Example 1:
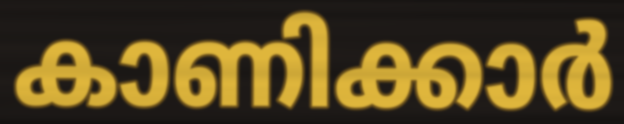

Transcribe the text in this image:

കാണിക്കാർ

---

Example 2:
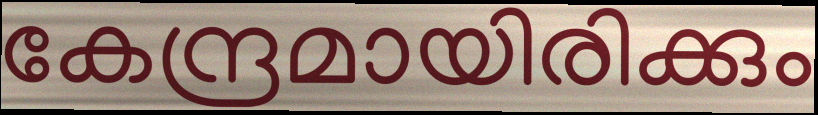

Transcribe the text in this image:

കേന്ദ്രമായിരിക്കും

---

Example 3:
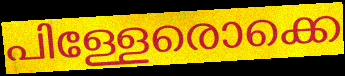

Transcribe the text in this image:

പിള്ളേരൊക്കെ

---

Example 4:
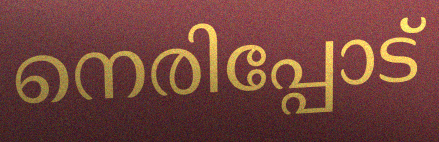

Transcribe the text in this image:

നെരിപ്പോട്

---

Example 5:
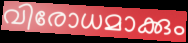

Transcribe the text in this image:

വിരോധമാക്കും